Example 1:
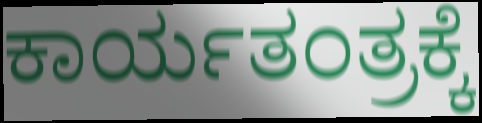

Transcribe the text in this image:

ಕಾರ್ಯತಂತ್ರಕ್ಕೆ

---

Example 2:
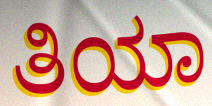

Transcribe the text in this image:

ತಿಯಾ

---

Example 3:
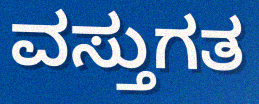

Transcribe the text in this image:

ವಸ್ತುಗತ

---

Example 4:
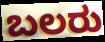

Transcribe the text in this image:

ಬಲರು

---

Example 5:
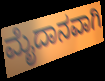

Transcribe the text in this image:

ಮೈದಾನವಾಗಿ